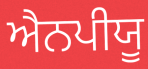
ਐਨਪੀਯੂ